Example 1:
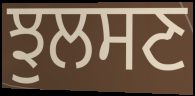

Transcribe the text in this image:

ਝੁਲਸਣ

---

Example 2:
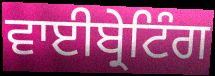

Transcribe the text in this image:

ਵਾਈਬ੍ਰੇਟਿੰਗ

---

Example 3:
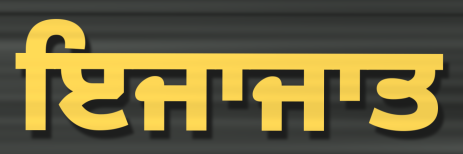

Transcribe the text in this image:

ਇਜਾਜਾਤ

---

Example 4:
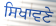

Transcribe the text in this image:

ਸਿਖਾਵਣੇ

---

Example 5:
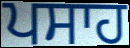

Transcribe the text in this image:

ਪਸਾਹ